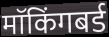
मॉकिंगबर्ड